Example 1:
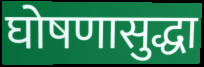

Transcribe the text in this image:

घोषणासुद्धा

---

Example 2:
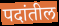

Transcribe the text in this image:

पदांतील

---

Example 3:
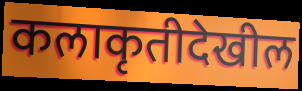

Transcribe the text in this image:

कलाकृतीदेखील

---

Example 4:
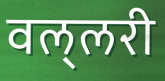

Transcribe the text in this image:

वल्लरी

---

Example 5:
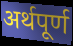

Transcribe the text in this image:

अर्थपूर्ण